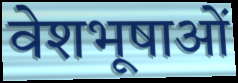
वेशभूषाओं